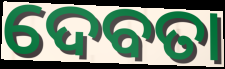
ଦେବତା